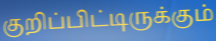
குறிப்பிட்டிருக்கும்